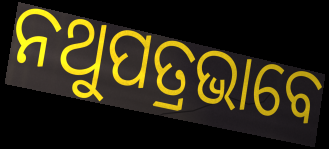
ନଥୁପତ୍ରଭାବେ